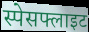
स्पेसफ्लाइट